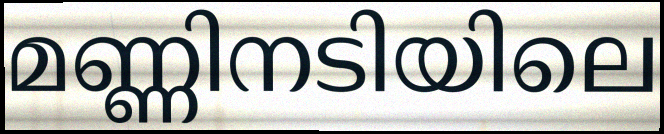
മണ്ണിനടിയിലെ